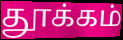
தூக்கம்